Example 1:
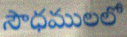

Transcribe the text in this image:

సౌధములలో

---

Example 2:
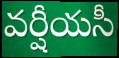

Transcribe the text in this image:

వర్షీయసీ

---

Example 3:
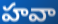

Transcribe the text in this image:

హవా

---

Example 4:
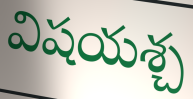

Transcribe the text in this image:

విషయశ్చ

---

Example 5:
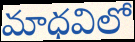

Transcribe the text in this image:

మాధవిలో